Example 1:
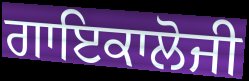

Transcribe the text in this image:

ਗਾਇਕਾਲੋਜੀ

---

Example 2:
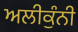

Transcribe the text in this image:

ਅਲੀਕੁੰਨੀ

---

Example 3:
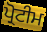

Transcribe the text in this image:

ਪ੍ਰੋਟੀਮ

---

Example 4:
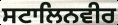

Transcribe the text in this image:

ਸਟਾਲਿਨਵੀਰ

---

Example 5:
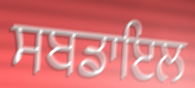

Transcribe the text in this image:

ਸਬਡਾਇਲ